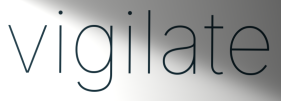
vigilate